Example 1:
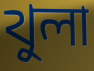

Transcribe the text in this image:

থুলা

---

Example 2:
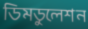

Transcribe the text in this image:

ডিমডুলেশন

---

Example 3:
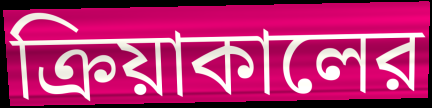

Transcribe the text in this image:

ক্রিয়াকালের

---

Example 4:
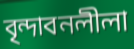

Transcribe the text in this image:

বৃন্দাবনলীলা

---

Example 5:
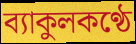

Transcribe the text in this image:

ব্যাকুলকণ্ঠে